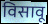
विसावू